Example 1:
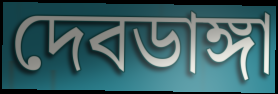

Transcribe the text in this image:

দেবডাঙ্গা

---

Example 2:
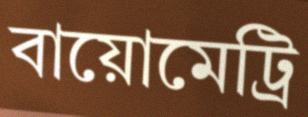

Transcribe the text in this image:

বায়োমেট্রি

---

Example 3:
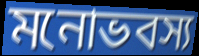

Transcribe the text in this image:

মনোভবস্য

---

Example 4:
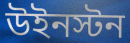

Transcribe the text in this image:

উইনস্টন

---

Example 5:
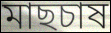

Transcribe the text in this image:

মাছচাষ